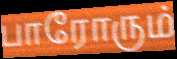
பாரோரும்